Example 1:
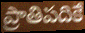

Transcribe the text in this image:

ప్రాతిపదికే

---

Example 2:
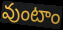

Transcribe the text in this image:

వుంటాం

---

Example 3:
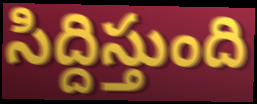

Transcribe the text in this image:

సిద్దిస్తుంది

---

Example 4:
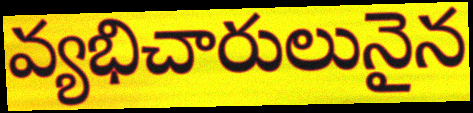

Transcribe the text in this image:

వ్యభిచారులునైన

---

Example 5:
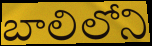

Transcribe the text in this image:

బాలిలోని